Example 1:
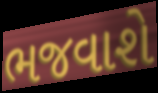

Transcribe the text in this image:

ભજવાશે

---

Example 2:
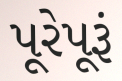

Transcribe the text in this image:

પૂરેપૂરૂં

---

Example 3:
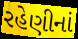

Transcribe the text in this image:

રહેણીનાં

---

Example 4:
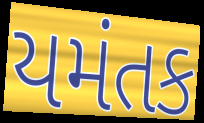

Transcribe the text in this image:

યમંતક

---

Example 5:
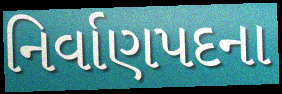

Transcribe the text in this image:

નિર્વાણપદના